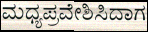
ಮಧ್ಯಪ್ರವೇಶಿಸಿದಾಗ